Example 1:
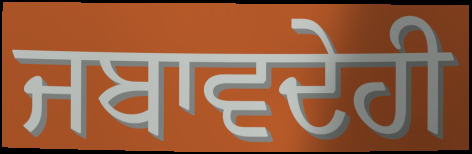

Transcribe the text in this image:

ਜਬਾਵਦੇਹੀ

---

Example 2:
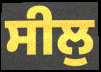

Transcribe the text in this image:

ਸੀਲੁ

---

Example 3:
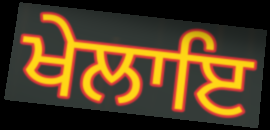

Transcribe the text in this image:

ਖੇਲਾਇ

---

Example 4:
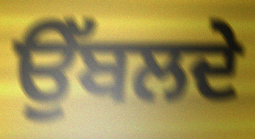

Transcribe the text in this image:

ਉੱਬਲਦੇ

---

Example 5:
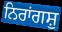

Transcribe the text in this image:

ਨਿਰਾਂਗਸ਼ੁ